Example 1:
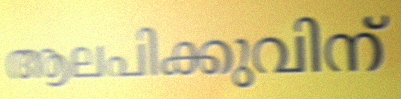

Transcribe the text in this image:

ആലപിക്കുവിന്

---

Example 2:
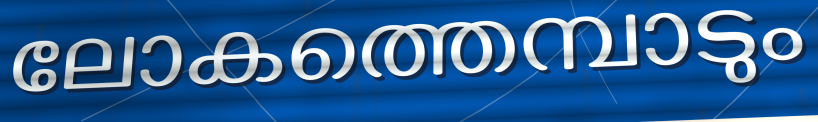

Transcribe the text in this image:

ലോകത്തെമ്പാടും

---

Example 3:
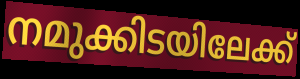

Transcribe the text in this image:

നമുക്കിടയിലേക്ക്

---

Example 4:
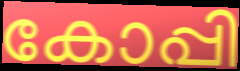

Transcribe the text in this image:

കോപ്പി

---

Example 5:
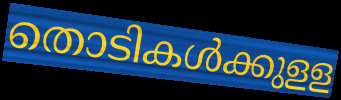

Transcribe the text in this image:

തൊടികൾക്കുളള